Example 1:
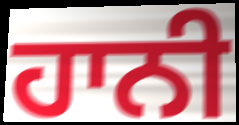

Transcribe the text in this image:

ਹਾਨੀ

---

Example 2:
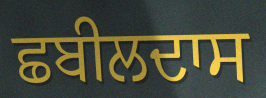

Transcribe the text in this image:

ਛਬੀਲਦਾਸ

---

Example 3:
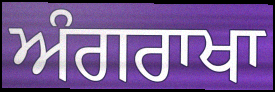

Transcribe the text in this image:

ਅੰਗਰਾਖਾ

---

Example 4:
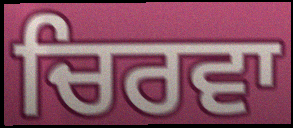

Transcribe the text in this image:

ਚਿਰਵਾ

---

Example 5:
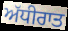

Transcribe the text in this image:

ਅੱਧੀਰਾਤ